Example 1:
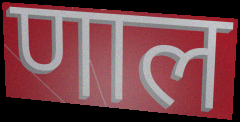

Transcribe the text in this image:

णाल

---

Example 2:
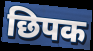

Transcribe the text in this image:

छिपक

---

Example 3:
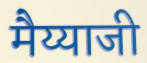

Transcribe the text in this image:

मैय्याजी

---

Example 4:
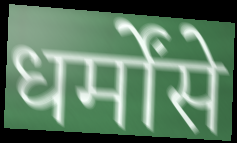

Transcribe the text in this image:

धर्मोंसे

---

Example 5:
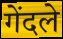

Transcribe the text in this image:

गेंदले